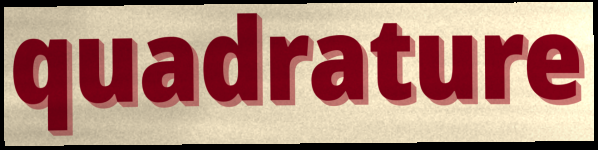
quadrature